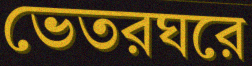
ভেতরঘরে